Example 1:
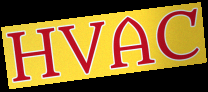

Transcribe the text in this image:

HVAC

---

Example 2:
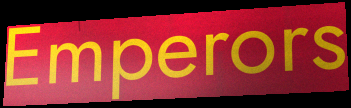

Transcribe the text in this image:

Emperors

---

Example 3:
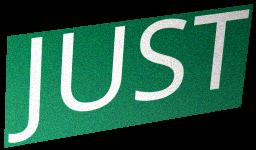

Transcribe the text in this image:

JUST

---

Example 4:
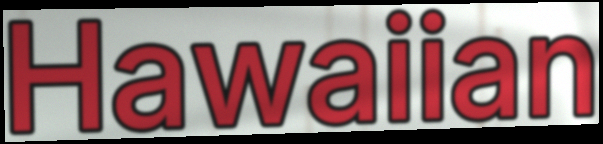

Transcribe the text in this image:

Hawaiian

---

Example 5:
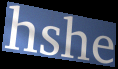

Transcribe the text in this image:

hshe